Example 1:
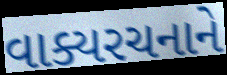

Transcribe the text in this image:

વાક્યરચનાને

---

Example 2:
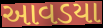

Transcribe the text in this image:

આવડયા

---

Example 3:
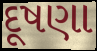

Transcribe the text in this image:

દૂષણા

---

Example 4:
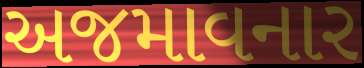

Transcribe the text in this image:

અજમાવનાર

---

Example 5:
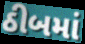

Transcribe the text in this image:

ઠીબમાં